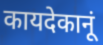
कायदेकानूं